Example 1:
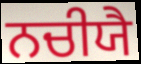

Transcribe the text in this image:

ਨਚੀਯੈ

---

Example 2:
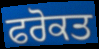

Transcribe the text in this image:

ਫਰੋਕਤ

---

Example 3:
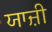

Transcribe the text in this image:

ਯਾਜ਼ੀ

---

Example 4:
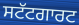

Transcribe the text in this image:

ਸਟੱਟਗਾਰਟ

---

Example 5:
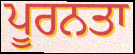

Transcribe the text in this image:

ਪੂਰਨਤਾ